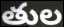
తుల